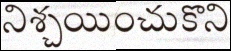
నిశ్చయించుకొని